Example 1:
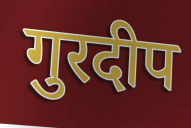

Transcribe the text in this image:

गुरदीप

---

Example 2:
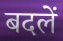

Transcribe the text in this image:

बदलें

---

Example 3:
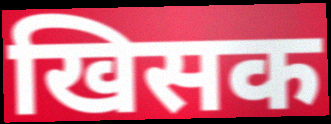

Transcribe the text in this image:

खिसक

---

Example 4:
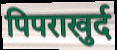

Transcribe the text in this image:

पिपराखुर्द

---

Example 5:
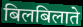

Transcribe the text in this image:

बिलबिलाते